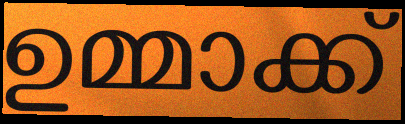
ഉമ്മാക്ക്